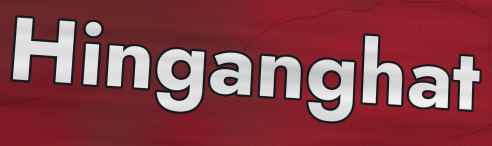
Hinganghat